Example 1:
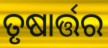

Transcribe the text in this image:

ତୃଷାର୍ତ୍ତର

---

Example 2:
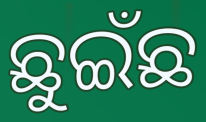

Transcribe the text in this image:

ଛୁଇଁଛ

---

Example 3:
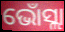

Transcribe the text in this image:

ଭୋଁସ୍ଲା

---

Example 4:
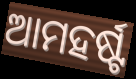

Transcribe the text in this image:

ଆମହର୍ଷ୍ଟ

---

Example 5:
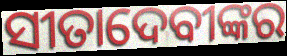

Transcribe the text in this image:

ସୀତାଦେବୀଙ୍କର